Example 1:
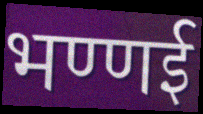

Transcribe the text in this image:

भण्णई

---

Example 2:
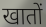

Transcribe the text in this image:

खातों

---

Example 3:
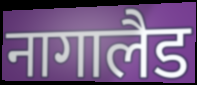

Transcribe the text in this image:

नागालैड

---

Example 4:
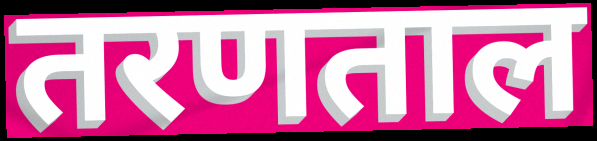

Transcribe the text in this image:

तरणताल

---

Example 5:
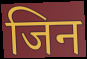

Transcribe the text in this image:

जिन